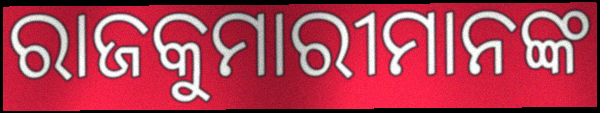
ରାଜକୁମାରୀମାନଙ୍କ